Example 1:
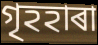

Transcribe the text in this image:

গৃহহাৰা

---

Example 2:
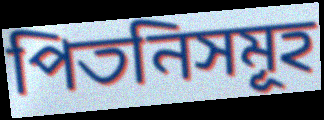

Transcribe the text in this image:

পিতনিসমূহ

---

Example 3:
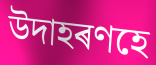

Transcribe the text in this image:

উদাহৰণহে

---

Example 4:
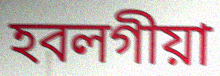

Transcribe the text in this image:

হবলগীয়া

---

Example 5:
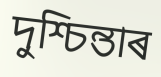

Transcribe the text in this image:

দুশ্চিন্তাৰ